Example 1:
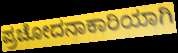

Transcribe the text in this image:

ಪ್ರಚೋದನಾಕಾರಿಯಾಗಿ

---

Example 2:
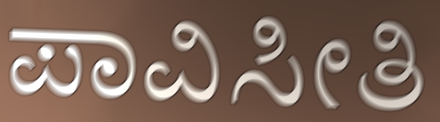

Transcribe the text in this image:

ಪಾವಿಸೀತಿ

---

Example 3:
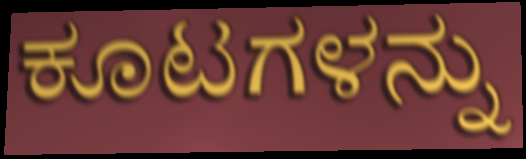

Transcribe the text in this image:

ಕೂಟಗಳನ್ನು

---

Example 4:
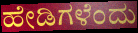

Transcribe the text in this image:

ಹೇಡಿಗಳೆಂದು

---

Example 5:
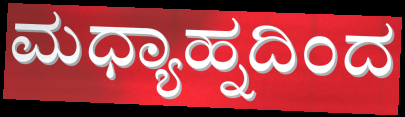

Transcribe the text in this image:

ಮಧ್ಯಾಹ್ನದಿಂದ